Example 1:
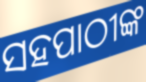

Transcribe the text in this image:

ସହପାଠୀଙ୍କ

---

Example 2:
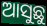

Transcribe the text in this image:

ଆସୁଛୁ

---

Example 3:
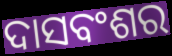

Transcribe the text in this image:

ଦାସବଂଶର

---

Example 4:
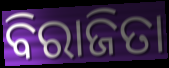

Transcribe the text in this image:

ବିରାଜିତା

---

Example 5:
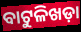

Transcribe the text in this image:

ବାଟୁଳିଖଡ଼ା